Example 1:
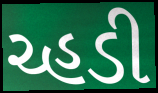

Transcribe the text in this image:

ચ્હડી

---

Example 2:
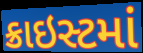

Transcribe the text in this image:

ક્રાઇસ્ટમાં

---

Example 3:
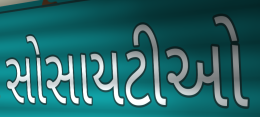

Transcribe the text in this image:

સોસાયટીઓ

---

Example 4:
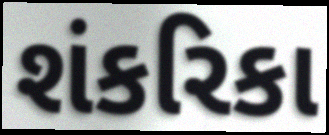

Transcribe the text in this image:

શંકરિકા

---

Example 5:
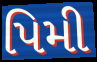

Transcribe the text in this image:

પિમી